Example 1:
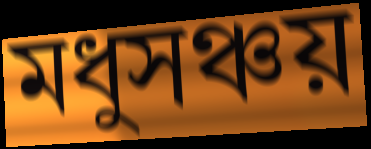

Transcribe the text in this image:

মধুসঞ্চয়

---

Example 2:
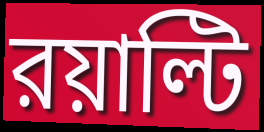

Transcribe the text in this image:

রয়াল্টি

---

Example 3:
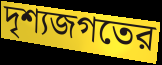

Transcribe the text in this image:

দৃশ্যজগতের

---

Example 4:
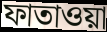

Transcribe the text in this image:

ফাতাওয়া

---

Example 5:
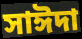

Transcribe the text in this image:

সাঈদা